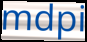
mdpi